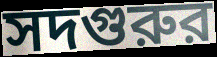
সদগুরুর